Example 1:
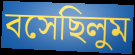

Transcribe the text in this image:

বসেছিলুম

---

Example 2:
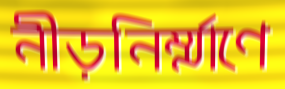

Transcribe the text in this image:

নীড়নির্ম্মাণে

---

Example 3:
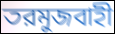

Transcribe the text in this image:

তরমুজবাহী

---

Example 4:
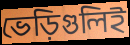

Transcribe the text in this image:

ভেড়িগুলিই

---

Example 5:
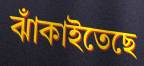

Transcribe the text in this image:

ঝাঁকাইতেছে